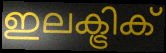
ഇലക്ട്രിക്